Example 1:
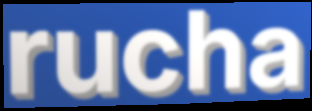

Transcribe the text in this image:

rucha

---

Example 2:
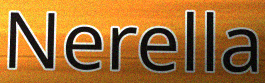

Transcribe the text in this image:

Nerella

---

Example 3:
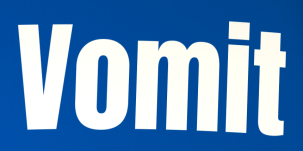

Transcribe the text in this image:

Vomit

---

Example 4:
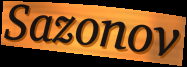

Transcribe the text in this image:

Sazonov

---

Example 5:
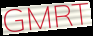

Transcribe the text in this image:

GMRT